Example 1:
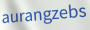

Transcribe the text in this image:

aurangzebs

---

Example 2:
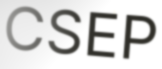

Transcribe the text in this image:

CSEP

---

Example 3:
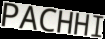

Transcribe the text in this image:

PACHHI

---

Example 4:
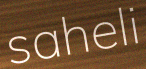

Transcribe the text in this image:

saheli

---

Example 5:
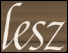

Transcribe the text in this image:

lesz